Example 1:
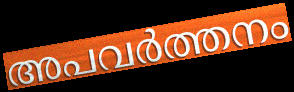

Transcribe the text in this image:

അപവർത്തനം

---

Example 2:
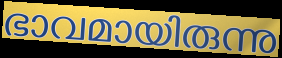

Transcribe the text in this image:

ഭാവമായിരുന്നു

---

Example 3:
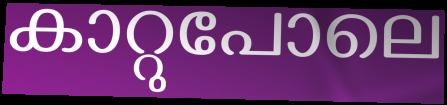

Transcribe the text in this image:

കാറ്റുപോലെ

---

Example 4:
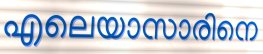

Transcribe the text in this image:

എലെയാസാരിനെ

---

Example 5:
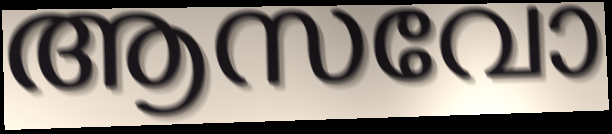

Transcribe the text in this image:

ആസവോ